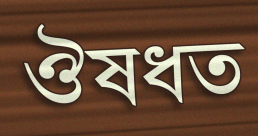
ঔষধত